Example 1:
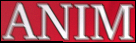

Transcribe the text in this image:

ANIM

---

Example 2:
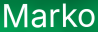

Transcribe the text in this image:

Marko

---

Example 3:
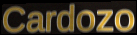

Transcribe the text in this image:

Cardozo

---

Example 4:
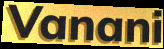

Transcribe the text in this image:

Vanani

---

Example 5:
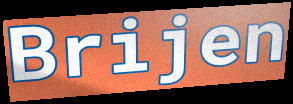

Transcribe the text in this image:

Brijen